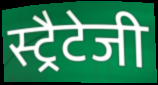
स्ट्रैटेजी